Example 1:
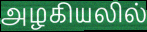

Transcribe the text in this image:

அழகியலில்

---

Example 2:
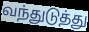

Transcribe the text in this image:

வந்துடுத்து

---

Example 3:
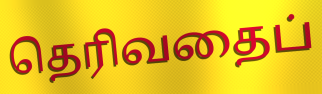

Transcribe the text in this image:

தெரிவதைப்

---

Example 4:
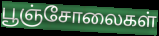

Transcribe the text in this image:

பூஞ்சோலைகள்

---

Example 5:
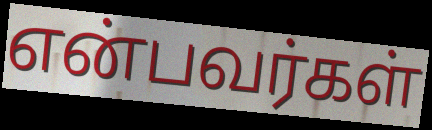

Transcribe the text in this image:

என்பவர்கள்